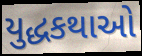
યુદ્ધકથાઓ